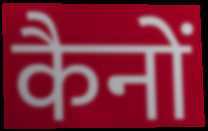
कैनों